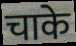
चाके